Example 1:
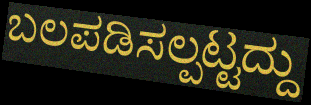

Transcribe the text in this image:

ಬಲಪಡಿಸಲ್ಪಟ್ಟದ್ದು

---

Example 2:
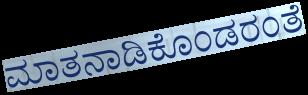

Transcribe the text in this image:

ಮಾತನಾಡಿಕೊಂಡರಂತೆ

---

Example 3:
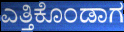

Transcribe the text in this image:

ಎತ್ತಿಕೊಂಡಾಗ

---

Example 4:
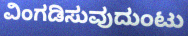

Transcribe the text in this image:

ವಿಂಗಡಿಸುವುದುಂಟು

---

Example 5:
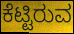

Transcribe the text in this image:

ಕೆಟ್ಟಿರುವ